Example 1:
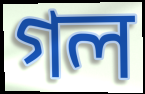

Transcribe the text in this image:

গল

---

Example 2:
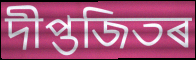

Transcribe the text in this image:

দীপ্তজিতৰ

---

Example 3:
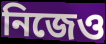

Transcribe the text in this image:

নিজেও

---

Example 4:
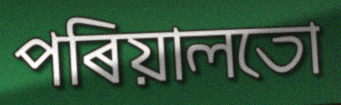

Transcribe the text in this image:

পৰিয়ালতো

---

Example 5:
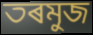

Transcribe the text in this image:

তৰমুজ